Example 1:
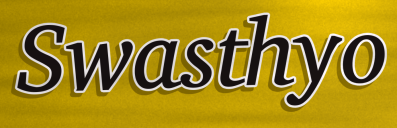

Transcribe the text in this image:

Swasthyo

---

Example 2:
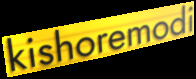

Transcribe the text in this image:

kishoremodi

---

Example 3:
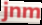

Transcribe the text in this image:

jnm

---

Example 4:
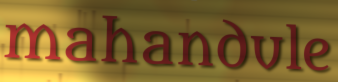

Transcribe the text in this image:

mahandule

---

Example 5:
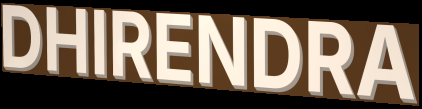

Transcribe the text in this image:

DHIRENDRA